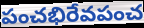
పంచభిరేవపంచ